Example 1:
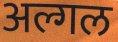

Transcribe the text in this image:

अल्गल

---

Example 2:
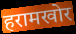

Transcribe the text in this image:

हरामखोर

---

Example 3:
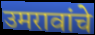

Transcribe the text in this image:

उमरावांचे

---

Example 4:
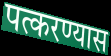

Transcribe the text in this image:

पत्करण्यास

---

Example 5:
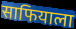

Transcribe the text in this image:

साफियाला